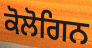
ਕੋਲੋਗਿਨ